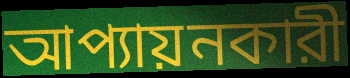
আপ্যায়নকারী